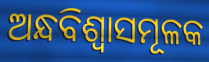
ଅନ୍ଧବିଶ୍ୱାସମୂଳକ